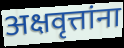
अक्षवृत्तांना